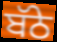
ਬੱਠੇ